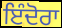
ਇੰਦੋਰਾ